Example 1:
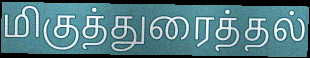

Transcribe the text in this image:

மிகுத்துரைத்தல்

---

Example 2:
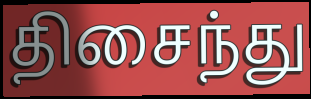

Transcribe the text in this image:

திசைந்து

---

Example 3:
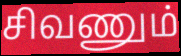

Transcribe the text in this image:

சிவணும்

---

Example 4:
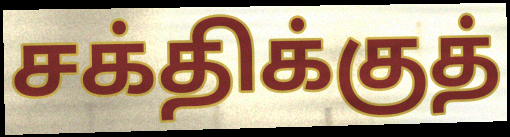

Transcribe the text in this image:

சக்திக்குத்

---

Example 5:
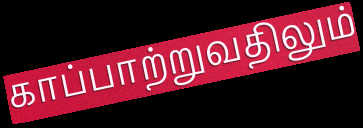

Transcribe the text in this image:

காப்பாற்றுவதிலும்